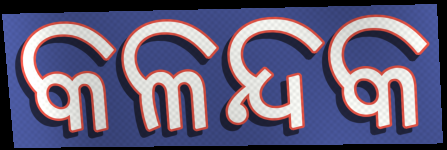
କଳନ୍ଦକ